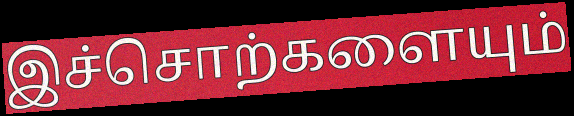
இச்சொற்களையும்